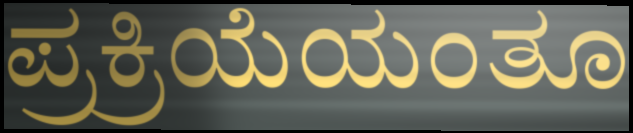
ಪ್ರಕ್ರಿಯೆಯಂತೂ